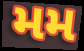
મમ